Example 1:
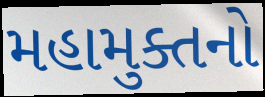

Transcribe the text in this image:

મહામુક્તનો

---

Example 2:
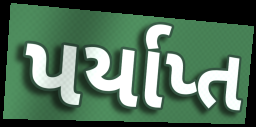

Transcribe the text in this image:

પર્યાપ્ત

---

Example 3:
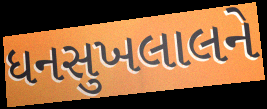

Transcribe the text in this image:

ધનસુખલાલને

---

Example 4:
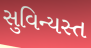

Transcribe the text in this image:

સુવિન્યસ્ત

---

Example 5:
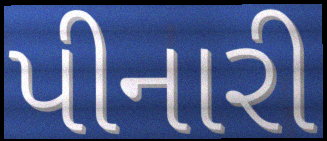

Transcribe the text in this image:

પીનારી